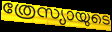
ത്രേസ്യായുടെ